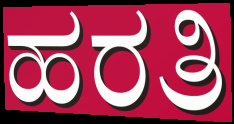
ಹರತಿ